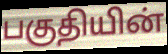
பகுதியின்